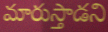
మారుస్తాడని